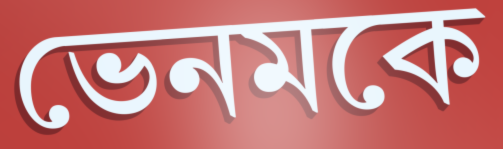
ভেনমকে